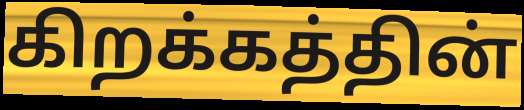
கிறக்கத்தின்